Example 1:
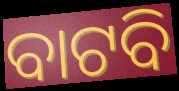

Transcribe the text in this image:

ବାଟବି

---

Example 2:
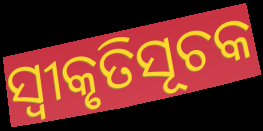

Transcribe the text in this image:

ସ୍ଵୀକୃତିସୂଚକ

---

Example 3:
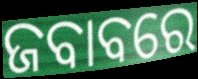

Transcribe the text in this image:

ଜବାବରେ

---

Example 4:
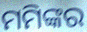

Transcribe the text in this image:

ମମିଙ୍କର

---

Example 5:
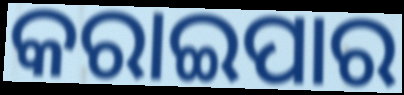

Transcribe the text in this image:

କରାଇପାର